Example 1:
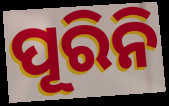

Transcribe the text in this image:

ପୂରିନି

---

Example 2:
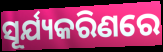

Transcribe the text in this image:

ସୂର୍ଯ୍ୟକରିଣରେ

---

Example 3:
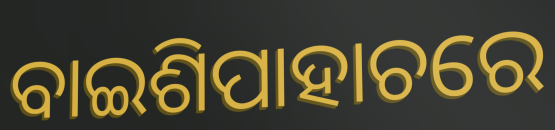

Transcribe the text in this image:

ବାଇଶିପାହାଚରେ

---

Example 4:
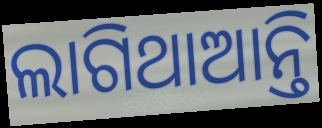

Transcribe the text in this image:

ଲାଗିଥାଆନ୍ତି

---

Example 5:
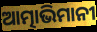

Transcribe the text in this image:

ଆତ୍ମାଭିମାନୀ